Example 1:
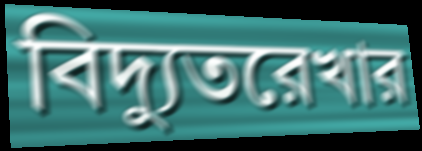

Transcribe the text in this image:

বিদ্যুতরেখার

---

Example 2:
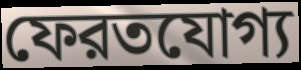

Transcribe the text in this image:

ফেরতযোগ্য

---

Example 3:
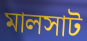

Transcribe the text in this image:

মালসাট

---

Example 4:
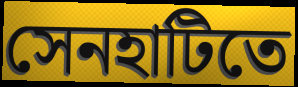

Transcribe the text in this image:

সেনহাটিতে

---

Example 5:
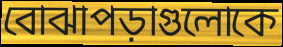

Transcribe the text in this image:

বোঝাপড়াগুলোকে